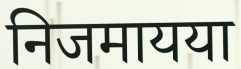
निजमायया